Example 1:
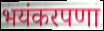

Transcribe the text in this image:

भयंकरपणा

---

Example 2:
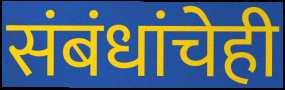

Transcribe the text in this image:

संबंधांचेही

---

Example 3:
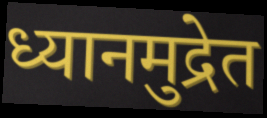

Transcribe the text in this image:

ध्यानमुद्रेत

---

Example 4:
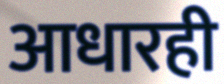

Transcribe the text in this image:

आधारही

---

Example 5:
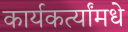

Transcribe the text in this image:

कार्यकर्त्यांमधे